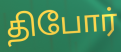
திபோர்